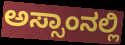
ಅಸ್ಸಾಂನಲ್ಲಿ